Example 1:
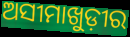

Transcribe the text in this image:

ଅସୀମାଖୁଡ଼ୀର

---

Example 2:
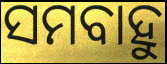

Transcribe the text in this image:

ସମବାହୁ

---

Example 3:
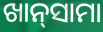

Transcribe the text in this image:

ଖାନ୍‌ସାମା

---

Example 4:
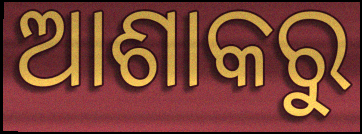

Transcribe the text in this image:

ଆଶାକରୁ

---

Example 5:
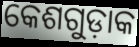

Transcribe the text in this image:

କେଶଗୁଡ଼ାକ